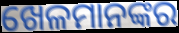
ଖେଳମାନଙ୍କର